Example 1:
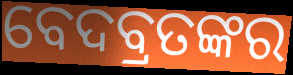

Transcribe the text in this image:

ବେଦବ୍ରତଙ୍କର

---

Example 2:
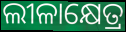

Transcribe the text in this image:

ଲୀଳାକ୍ଷେତ୍ର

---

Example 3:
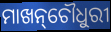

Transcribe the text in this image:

ମାଖନ୍‌ଚୌଧୁରୀ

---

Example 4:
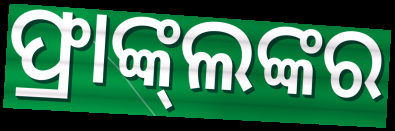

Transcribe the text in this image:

ଫ୍ରାଙ୍କ୍‌ଲଙ୍କର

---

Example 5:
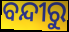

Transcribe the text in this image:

ବନ୍ଦୀରୁ